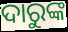
ଦାରୁଙ୍କ